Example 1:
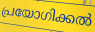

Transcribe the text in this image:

പ്രയോഗിക്കൽ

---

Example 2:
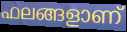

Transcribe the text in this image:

ഫലങ്ങളാണ്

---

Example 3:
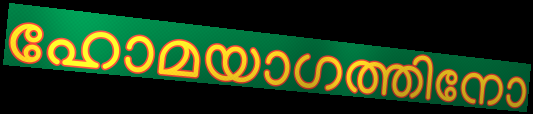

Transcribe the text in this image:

ഹോമയാഗത്തിനോ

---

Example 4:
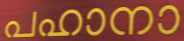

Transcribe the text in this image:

പഹാനാ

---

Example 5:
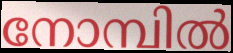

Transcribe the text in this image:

നോമ്പിൽ